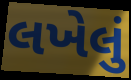
લખેલું